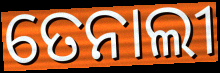
ତେନାଲୀ